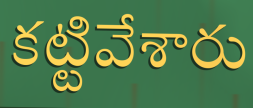
కట్టివేశారు